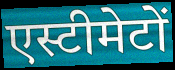
एस्टीमेटों